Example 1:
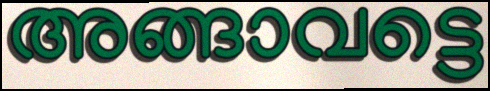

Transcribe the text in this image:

അങ്ങാവട്ടെ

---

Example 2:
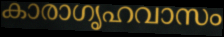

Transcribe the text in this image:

കാരാഗൃഹവാസം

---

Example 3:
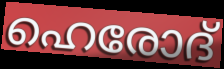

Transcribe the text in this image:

ഹെരോദ്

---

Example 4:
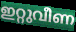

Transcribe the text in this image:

ഇറ്റുവീണ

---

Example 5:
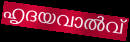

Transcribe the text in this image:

ഹൃദയവാൽവ്